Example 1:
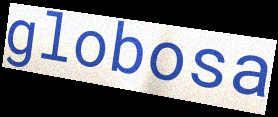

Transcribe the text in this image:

globosa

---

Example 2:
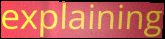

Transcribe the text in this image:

explaining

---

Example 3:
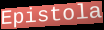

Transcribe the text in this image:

Epistola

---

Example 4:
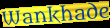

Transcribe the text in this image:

Wankhade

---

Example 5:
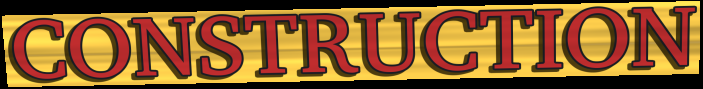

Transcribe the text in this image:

CONSTRUCTION